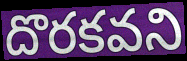
దొరకవని